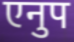
एनुप